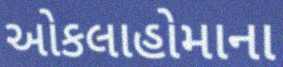
ઓકલાહોમાના